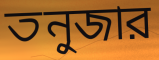
তনুজার